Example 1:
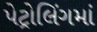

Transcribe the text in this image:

પેટ્રોલિંગમાં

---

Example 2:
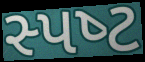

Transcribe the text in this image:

સ્પષ્‍ટ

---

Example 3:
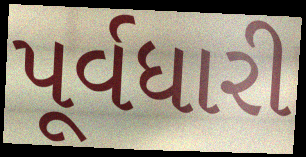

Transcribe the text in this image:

પૂર્વધારી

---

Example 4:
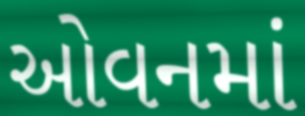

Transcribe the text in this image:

ઓવનમાં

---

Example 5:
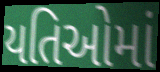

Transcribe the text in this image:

યતિઓમાં